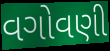
વગોવણી